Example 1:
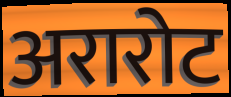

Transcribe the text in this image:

अरारोट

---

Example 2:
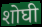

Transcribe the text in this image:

शोघी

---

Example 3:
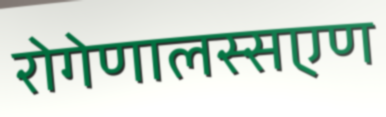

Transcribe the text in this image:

रोगेणालस्सएण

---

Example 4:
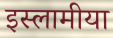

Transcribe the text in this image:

इस्लामीया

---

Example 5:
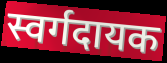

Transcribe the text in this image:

स्वर्गदायक